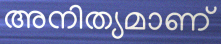
അനിത്യമാണ്